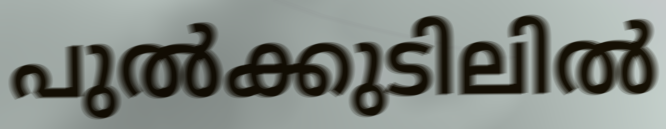
പുൽക്കുടിലിൽ